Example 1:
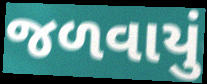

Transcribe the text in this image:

જળવાયું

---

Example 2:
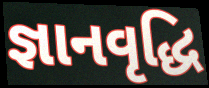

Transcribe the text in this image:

જ્ઞાનવૃદ્ધિ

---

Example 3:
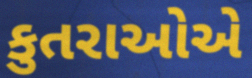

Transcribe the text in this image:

કુતરાઓએ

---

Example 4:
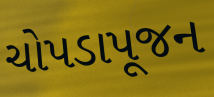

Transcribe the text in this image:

ચોપડાપૂજન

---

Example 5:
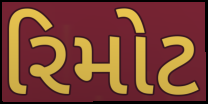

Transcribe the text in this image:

રિમોટ